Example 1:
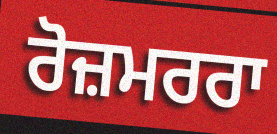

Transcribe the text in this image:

ਰੋਜ਼ਮਰਰਾ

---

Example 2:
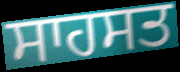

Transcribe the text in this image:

ਸਾਹਸਤ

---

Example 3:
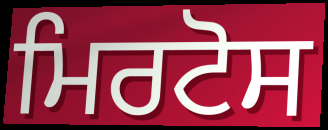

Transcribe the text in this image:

ਮਿਰਟੋਸ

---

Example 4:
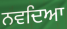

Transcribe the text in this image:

ਨਵਦਿਆ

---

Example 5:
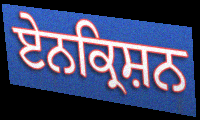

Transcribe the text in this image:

ਏਨਕ੍ਰਿਸ਼ਨ